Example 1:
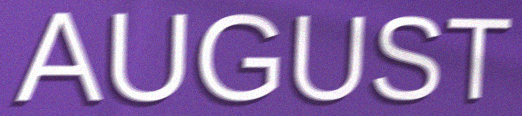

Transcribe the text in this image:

AUGUST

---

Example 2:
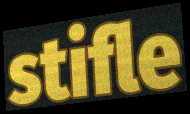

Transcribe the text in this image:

stifle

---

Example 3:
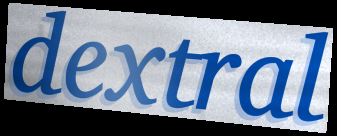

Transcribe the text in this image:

dextral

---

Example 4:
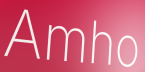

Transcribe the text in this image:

Amho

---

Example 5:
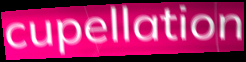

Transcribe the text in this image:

cupellation